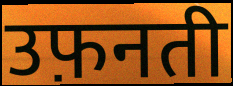
उफ़नती